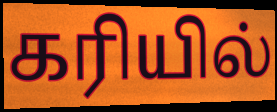
கரியில்